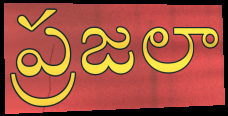
ప్రజలా